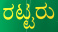
ರಟ್ಟರು